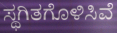
ಸ್ಥಗಿತಗೊಳಿಸಿವೆ